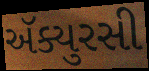
ઍક્યુરસી